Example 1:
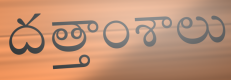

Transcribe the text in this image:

దత్తాంశాలు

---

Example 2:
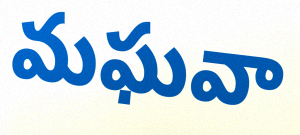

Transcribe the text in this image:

మఘవా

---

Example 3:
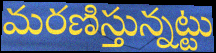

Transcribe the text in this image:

మరణిస్తున్నట్టు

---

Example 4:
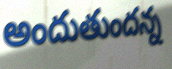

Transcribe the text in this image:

అందుతుందన్న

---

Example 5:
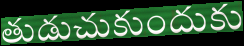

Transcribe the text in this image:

తుడుచుకుందుకు